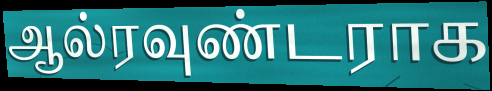
ஆல்ரவுண்டராக